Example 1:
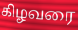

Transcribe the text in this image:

கிழவரை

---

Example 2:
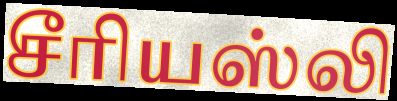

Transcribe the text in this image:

சீரியஸ்லி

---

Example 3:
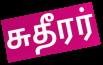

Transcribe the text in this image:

சுதீரர்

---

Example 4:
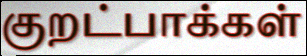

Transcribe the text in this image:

குறட்பாக்கள்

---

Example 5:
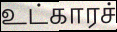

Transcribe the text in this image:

உட்காரச்